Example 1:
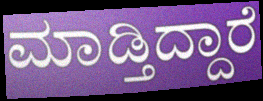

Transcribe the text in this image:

ಮಾಡ್ತಿದ್ದಾರೆ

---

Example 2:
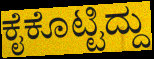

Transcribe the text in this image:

ಕೈಕೊಟ್ಟಿದ್ದು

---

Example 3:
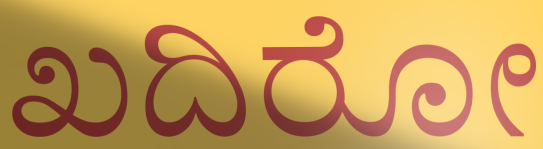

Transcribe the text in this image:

ಖದಿರೋ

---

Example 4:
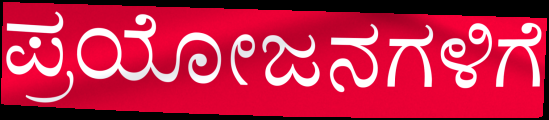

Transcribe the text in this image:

ಪ್ರಯೋಜನಗಳಿಗೆ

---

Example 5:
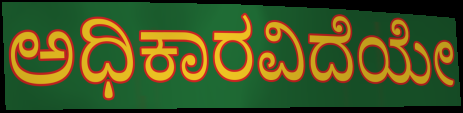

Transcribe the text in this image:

ಅಧಿಕಾರವಿದೆಯೇ